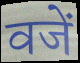
वजें